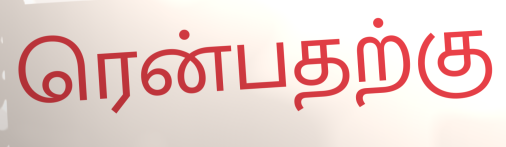
ரென்பதற்கு